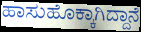
ಹಾಸುಹೊಕ್ಕಾಗಿದ್ದಾನೆ